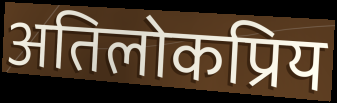
अतिलोकप्रिय